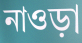
নাওড়া